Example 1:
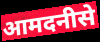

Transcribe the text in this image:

आमदनीसे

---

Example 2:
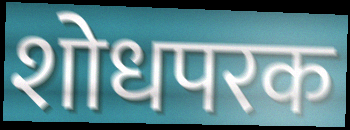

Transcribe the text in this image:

शोधपरक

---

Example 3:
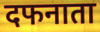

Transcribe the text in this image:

दफनाता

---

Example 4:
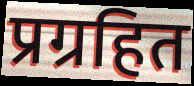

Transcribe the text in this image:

प्रग्रहित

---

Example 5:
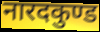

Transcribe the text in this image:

नारदकुण्ड